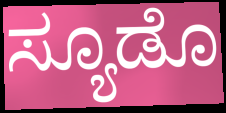
ಸ್ಯೂಡೊ